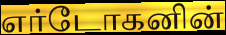
எர்டோகனின்